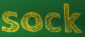
sock